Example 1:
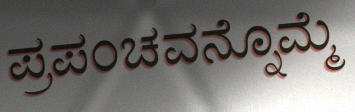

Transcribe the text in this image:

ಪ್ರಪಂಚವನ್ನೊಮ್ಮೆ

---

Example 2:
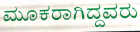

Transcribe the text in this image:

ಮೂಕರಾಗಿದ್ದವರು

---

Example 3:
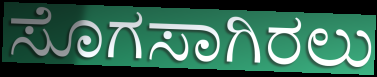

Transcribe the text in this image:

ಸೊಗಸಾಗಿರಲು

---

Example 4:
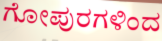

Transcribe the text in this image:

ಗೋಪುರಗಳಿಂದ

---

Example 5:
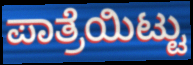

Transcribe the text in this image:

ಪಾತ್ರೆಯಿಟ್ಟು